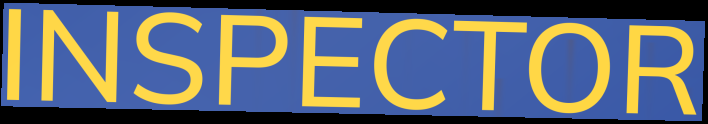
INSPECTOR